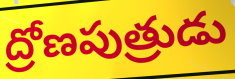
ద్రోణపుత్రుడు